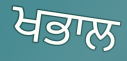
ਖਭਾਲ